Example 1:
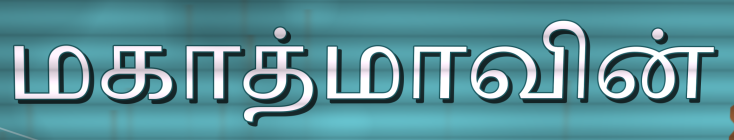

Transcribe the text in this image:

மகாத்மாவின்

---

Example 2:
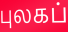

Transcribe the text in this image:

புலகப்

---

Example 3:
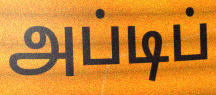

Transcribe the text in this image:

அப்டிப்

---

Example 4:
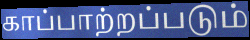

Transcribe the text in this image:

காப்பாற்றப்படும்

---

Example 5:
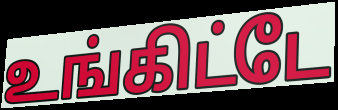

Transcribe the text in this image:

உங்கிட்டே